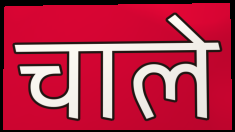
चाले